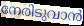
നേരിടുവാൻ